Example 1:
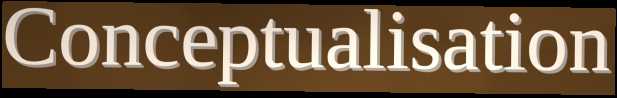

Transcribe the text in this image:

Conceptualisation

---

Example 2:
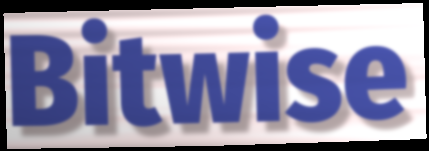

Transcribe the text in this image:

Bitwise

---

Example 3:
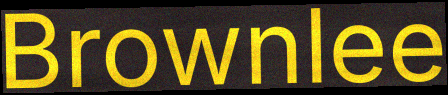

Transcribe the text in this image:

Brownlee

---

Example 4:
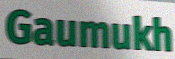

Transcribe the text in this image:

Gaumukh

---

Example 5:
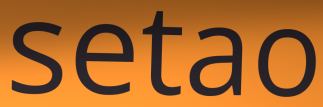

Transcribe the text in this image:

setao